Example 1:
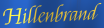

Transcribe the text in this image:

Hillenbrand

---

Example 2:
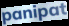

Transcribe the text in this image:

panipat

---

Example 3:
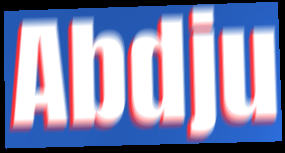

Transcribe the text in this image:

Abdju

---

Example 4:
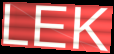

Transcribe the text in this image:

LEK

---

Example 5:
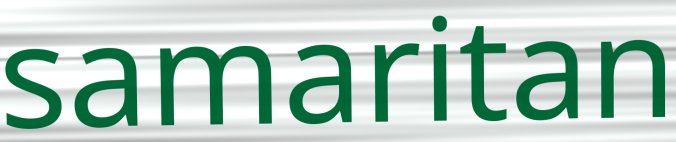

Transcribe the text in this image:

samaritan